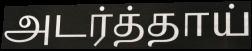
அடர்த்தாய்